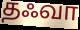
தஃவா